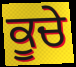
ਕੂਚੇ